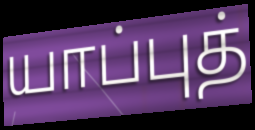
யாப்புத்